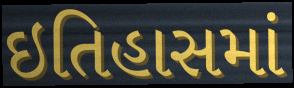
ઇતિહાસમાં